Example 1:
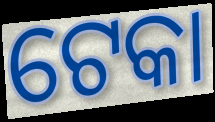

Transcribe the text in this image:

ଟେକା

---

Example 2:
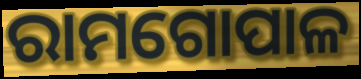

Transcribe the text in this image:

ରାମଗୋପାଳ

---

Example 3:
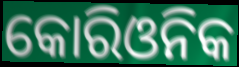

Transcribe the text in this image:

କୋରିଓନିକ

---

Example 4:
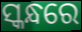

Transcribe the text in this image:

ସ୍କନ୍ଧରେ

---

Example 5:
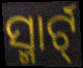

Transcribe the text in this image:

ସ୍ମାର୍ଟ୍